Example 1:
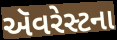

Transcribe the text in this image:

ઍૅવરેસ્ટના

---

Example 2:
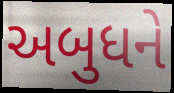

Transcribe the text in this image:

અબુધને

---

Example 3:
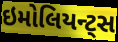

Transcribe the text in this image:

ઇમોલિયન્ટ્સ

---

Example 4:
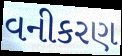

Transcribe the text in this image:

વનીકરણ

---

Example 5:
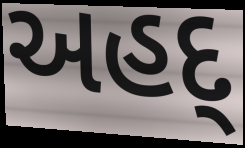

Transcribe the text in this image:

અહદ્